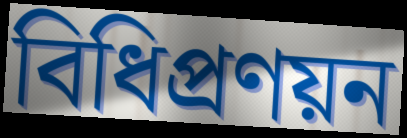
বিধিপ্রণয়ন